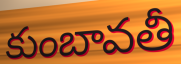
కుంబావతీ